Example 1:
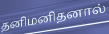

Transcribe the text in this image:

தனிமனிதனால்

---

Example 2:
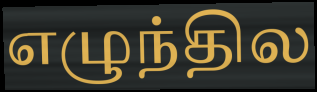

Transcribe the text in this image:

எழுந்தில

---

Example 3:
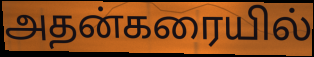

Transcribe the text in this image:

அதன்கரையில்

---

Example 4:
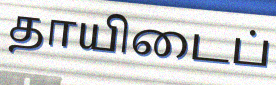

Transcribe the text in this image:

தாயிடைப்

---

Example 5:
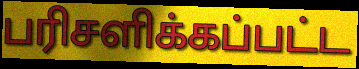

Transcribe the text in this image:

பரிசளிக்கப்பட்ட